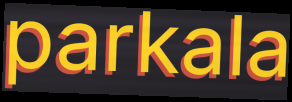
parkala